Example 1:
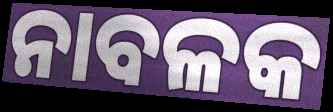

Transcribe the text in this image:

ନାବଳକ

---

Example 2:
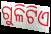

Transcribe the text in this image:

ଗୁଳିଟିଏ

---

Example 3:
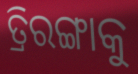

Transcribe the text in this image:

ତ୍ରିରଙ୍ଗାକୁ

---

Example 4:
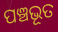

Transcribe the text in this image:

ପଞ୍ଚଭୂତ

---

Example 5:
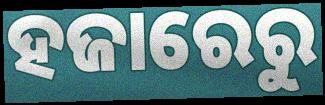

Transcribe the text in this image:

ହଜାରେରୁ